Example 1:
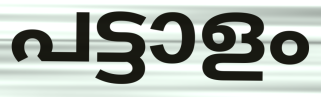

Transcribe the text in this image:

പട്ടാളം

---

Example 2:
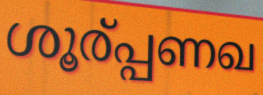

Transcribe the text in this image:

ശൂര്പ്പണഖ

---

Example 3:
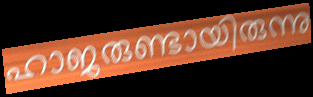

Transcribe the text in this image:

ഹാജരുണ്ടായിരുന്നു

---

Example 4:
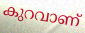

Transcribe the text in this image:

കുറവാണ്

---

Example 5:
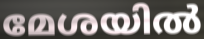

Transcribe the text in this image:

മേശയിൽ